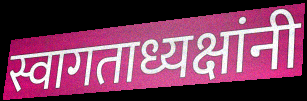
स्वागताध्यक्षांनी